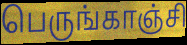
பெருங்காஞ்சி